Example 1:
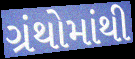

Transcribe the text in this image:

ગ્રંથોમાંથી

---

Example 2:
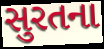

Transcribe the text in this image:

સુરતના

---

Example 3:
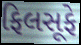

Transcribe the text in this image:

ફિલસૂફે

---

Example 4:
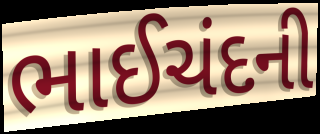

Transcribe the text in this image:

ભાઈચંદની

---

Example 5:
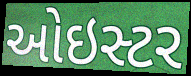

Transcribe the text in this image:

ઓઇસ્ટર